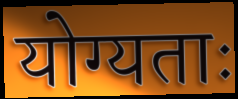
योग्यताः